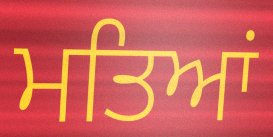
ਮਤਿਆਂ